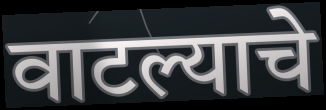
वाटल्याचे